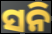
ସନି